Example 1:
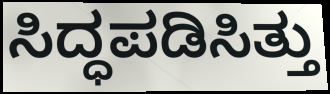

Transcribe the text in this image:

ಸಿದ್ಧಪಡಿಸಿತ್ತು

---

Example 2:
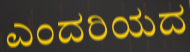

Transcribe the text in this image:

ಎಂದರಿಯದ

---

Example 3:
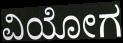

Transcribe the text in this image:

ವಿಯೋಗ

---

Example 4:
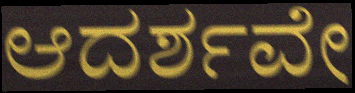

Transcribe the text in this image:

ಆದರ್ಶವೇ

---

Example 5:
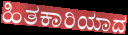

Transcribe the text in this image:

ಹಿತಕಾರಿಯಾದ